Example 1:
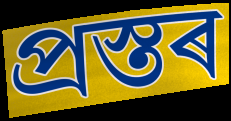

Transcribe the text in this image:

প্ৰস্তৰ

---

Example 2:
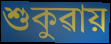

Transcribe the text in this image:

শুকুৱায়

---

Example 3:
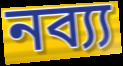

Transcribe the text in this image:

নব্য্য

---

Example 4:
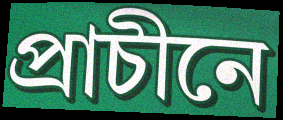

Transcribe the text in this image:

প্ৰাচীনে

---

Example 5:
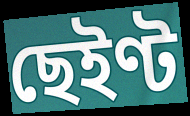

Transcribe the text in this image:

ছেইণ্ট